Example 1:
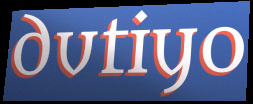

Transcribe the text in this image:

dutiyo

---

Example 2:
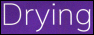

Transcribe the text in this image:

Drying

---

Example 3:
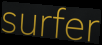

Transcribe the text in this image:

surfer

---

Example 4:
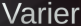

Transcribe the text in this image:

Varier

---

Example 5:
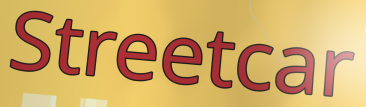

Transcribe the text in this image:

Streetcar